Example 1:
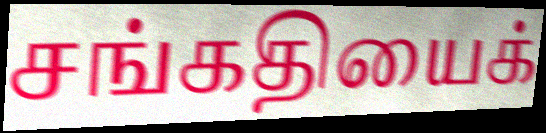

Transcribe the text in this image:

சங்கதியைக்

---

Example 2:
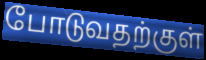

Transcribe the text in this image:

போடுவதற்குள்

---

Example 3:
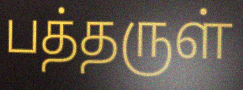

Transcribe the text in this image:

பத்தருள்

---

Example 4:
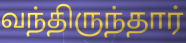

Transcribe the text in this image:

வந்திருந்தார்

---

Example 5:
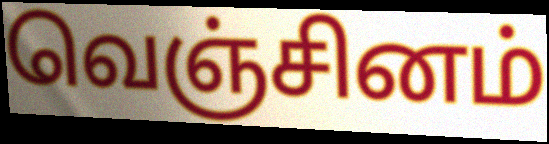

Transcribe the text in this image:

வெஞ்சினம்